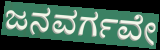
ಜನವರ್ಗವೇ